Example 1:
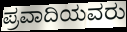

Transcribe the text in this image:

ಪ್ರವಾದಿಯವರು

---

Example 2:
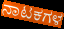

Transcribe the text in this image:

ನಾಟಕಗಳ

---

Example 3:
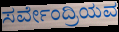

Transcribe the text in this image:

ಸರ್ವೇಂದ್ರಿಯವ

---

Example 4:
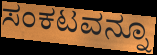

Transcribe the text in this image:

ಸಂಕಟವನ್ನೂ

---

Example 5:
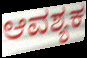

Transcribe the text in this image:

ಆವಶ್ಯಕ